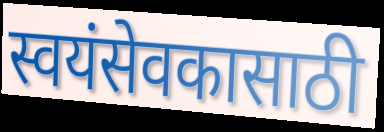
स्वयंसेवकासाठी